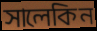
সালেকিন